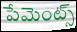
పేమెంట్స్